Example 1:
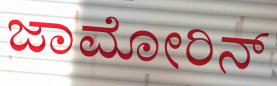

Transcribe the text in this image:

ಜಾಮೋರಿನ್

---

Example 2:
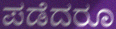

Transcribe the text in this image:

ಪಡೆದರೂ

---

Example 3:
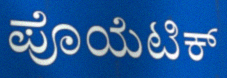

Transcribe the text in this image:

ಪೊಯೆಟಿಕ್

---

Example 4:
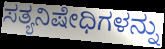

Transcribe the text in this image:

ಸತ್ಯನಿಷೇಧಿಗಳನ್ನು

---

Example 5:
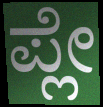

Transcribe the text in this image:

ಪ್ಲೇ